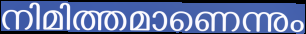
നിമിത്തമാണെന്നും